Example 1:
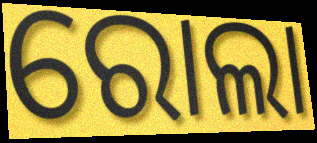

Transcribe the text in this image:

ରୋଲା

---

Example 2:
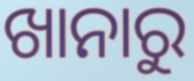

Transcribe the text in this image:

ଖାନାରୁ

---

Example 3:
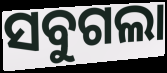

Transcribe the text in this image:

ସବୁଗଲା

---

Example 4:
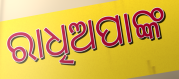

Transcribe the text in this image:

ରାଧିଅପାଙ୍କ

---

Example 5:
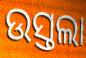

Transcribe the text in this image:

ଉସ୍ତଲା